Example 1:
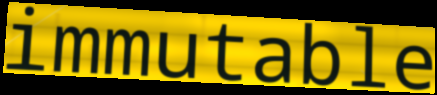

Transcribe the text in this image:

immutable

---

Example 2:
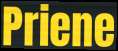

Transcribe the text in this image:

Priene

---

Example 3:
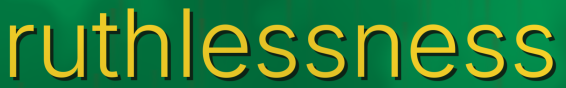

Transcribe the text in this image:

ruthlessness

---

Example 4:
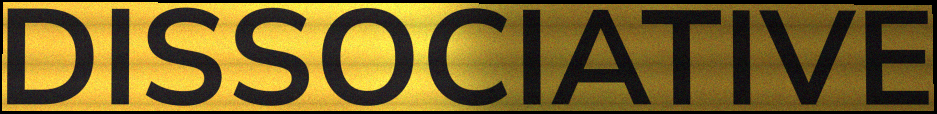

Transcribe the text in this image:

DISSOCIATIVE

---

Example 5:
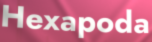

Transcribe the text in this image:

Hexapoda